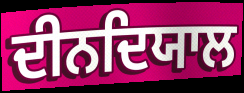
ਦੀਨਦਿਯਾਲ